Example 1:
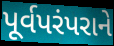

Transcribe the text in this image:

પૂર્વપરંપરાને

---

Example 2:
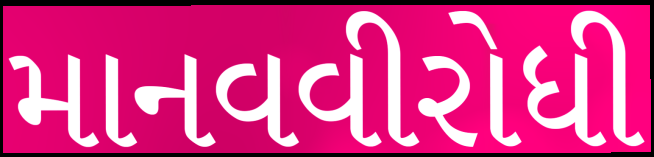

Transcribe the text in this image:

માનવવીરોધી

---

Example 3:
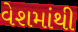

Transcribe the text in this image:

વેશમાંથી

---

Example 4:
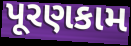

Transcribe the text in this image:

પૂરણકામ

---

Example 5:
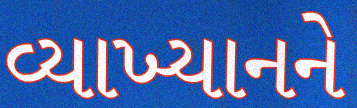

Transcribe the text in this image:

વ્યાખ્યાનને